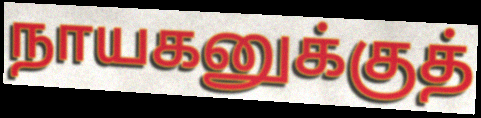
நாயகனுக்குத்